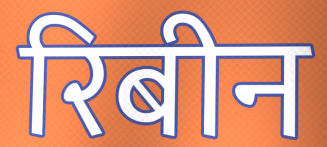
रिबीन